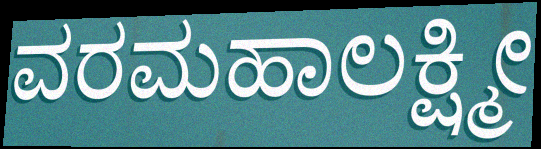
ವರಮಹಾಲಕ್ಷ್ಮೀ